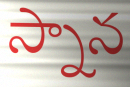
స్నాన